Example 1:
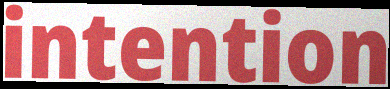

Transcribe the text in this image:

intention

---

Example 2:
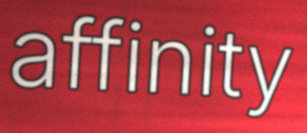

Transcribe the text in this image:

affinity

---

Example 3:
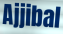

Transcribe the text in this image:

Ajjibal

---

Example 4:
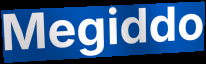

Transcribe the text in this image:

Megiddo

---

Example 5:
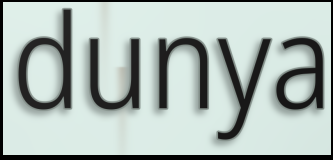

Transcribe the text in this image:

dunya